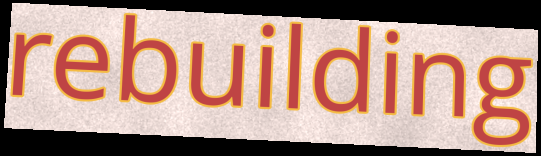
rebuilding